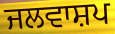
ਜਲਵਾਸ਼ਪ